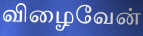
விழைவேன்